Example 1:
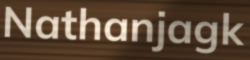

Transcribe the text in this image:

Nathanjagk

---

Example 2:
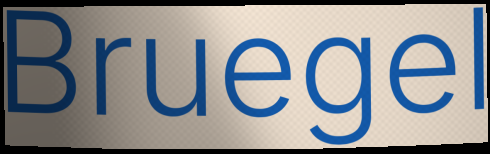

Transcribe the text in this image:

Bruegel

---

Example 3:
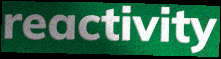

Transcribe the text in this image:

reactivity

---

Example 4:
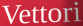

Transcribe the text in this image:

Vettori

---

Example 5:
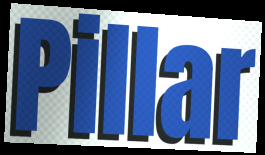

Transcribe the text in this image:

Pillar